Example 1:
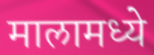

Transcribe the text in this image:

मालामध्ये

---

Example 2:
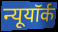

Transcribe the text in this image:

न्यूयॉर्क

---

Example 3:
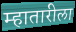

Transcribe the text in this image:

म्हातारीला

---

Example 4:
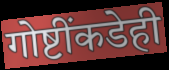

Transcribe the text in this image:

गोष्टींकडेही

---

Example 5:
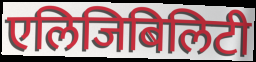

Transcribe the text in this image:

एलिजिबिलिटी